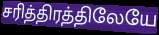
சரித்திரத்திலேயே